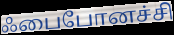
ஃபைபோனச்சி